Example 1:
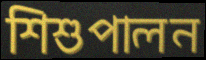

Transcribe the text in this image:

শিশুপালন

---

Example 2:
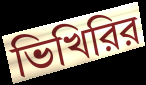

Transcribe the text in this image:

ভিখিরির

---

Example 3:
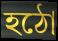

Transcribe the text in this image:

হঠো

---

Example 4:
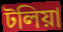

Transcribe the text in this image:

টলিয়া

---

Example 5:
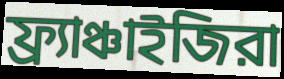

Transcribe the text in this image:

ফ্র্যাঞ্চাইজিরা